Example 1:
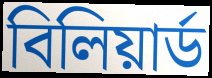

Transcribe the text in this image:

বিলিয়ার্ড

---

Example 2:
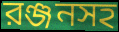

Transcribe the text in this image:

রঞ্জনসহ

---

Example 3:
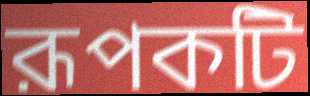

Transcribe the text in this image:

রূপকটি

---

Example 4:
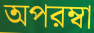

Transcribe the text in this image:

অপরম্বা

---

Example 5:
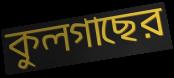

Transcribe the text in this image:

কুলগাছের